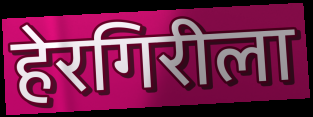
हेरगिरीला